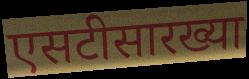
एसटीसारख्या